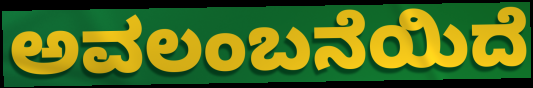
ಅವಲಂಬನೆಯಿದೆ